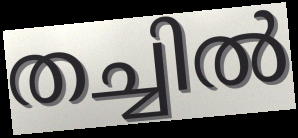
തച്ചിൽ